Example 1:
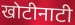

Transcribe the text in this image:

खोटीनाटी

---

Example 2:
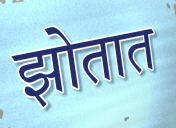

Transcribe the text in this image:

झोतात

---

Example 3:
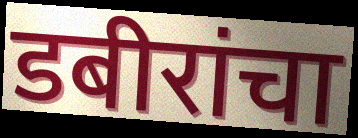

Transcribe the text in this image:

डबीरांचा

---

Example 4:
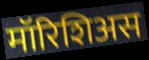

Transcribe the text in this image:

मॉरिशिअस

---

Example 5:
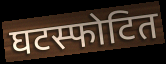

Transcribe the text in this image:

घटस्फोटित